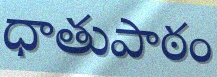
ధాతుపాఠం